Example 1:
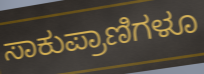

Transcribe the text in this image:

ಸಾಕುಪ್ರಾಣಿಗಳೂ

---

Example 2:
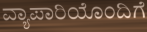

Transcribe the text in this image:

ವ್ಯಾಪಾರಿಯೊಂದಿಗೆ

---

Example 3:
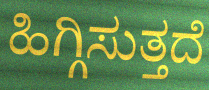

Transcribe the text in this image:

ಹಿಗ್ಗಿಸುತ್ತದೆ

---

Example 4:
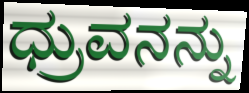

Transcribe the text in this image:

ಧ್ರುವನನ್ನು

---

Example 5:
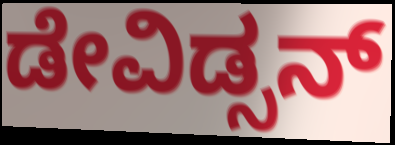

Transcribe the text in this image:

ಡೇವಿಡ್ಸನ್